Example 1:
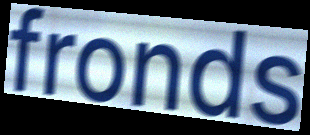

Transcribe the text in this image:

fronds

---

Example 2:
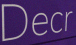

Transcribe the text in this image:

Decr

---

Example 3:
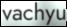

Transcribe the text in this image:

vachyu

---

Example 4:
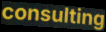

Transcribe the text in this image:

consulting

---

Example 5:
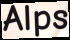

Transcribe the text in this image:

Alps